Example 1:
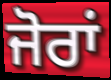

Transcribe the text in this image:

ਜੋਰਾਂ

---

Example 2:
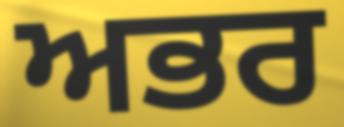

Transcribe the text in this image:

ਅਭਰ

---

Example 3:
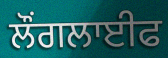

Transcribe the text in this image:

ਲੌਂਗਲਾਈਫ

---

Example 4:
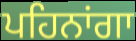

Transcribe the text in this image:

ਪਹਿਨਾਂਗਾ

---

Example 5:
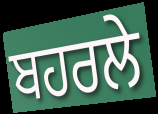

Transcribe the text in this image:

ਬਹਰਲੇ